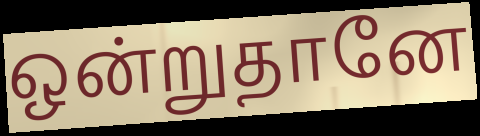
ஒன்றுதானே